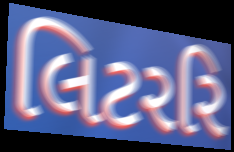
લિટરરિ